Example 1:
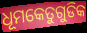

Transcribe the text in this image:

ଧୂମକେତୁଗୁଡିକ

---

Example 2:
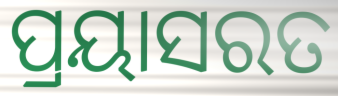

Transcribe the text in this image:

ପ୍ରୟାସରତ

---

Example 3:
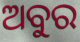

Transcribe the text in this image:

ଅବୁର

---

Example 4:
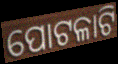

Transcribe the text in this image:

ପୋଟଳାଟି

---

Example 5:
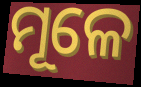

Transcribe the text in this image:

ମୂଳେ